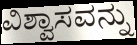
ವಿಶ್ವಾಸವನ್ನು